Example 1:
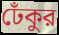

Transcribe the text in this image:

ঢেঁকুর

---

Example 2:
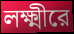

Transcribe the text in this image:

লক্ষ্মীরে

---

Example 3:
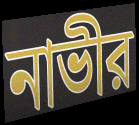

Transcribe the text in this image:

নাভীর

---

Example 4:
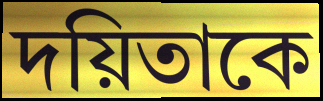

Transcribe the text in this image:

দয়িতাকে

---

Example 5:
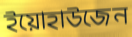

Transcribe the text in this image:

ইয়োহাউজেন